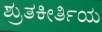
ಶ್ರುತಕೀರ್ತಿಯ